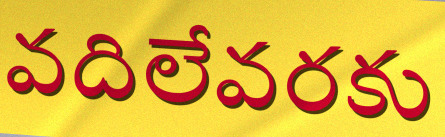
వదిలేవరకు